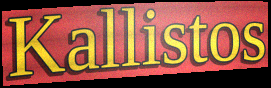
Kallistos